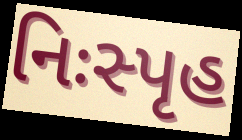
નિઃસ્પૃહ